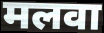
मलवा